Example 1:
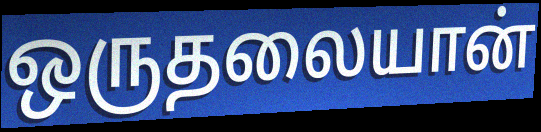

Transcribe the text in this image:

ஒருதலையான்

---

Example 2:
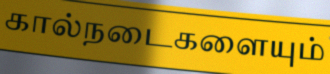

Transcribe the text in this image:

கால்நடைகளையும்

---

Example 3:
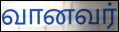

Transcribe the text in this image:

வானவர்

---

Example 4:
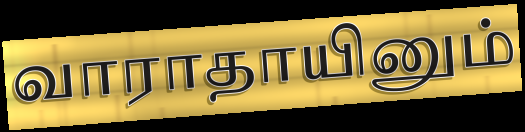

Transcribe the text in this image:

வாராதாயினும்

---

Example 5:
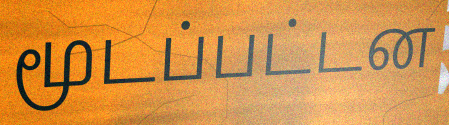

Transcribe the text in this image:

மூடப்பட்டன